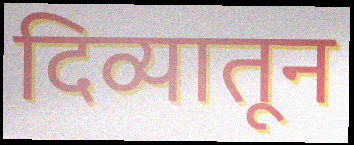
दिव्यातून